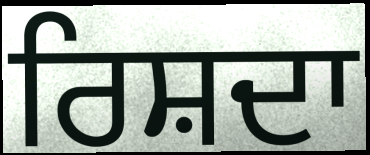
ਰਿਸ਼ਦਾ